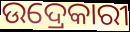
ଉଦ୍ରେକାରୀ